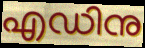
എഡിനു